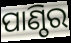
ପାଣ୍ଠିର